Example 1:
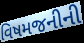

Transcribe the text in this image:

વિષમજનીની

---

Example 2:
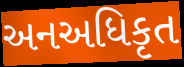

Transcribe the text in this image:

અનઅધિકૃત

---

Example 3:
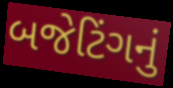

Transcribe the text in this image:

બજેટિંગનું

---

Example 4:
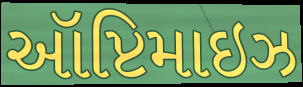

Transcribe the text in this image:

ઑપ્ટિમાઇઝ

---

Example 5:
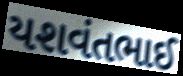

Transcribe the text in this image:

યશવંતભાઈ